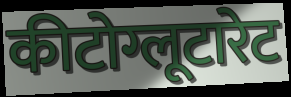
कीटोग्लूटारेट